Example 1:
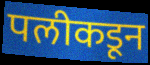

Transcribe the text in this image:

पलीकडून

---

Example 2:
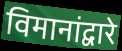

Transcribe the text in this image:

विमानांद्वारे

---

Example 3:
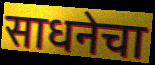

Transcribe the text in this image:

साधनेचा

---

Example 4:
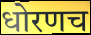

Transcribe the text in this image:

धोरणच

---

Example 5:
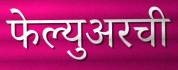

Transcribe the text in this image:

फेल्युअरची